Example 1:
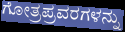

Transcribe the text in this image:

ಗೋತ್ರಪ್ರವರಗಳನ್ನು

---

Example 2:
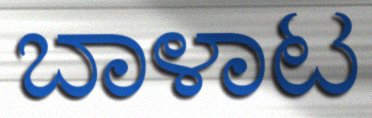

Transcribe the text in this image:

ಬಾಳಾಟ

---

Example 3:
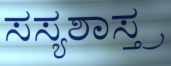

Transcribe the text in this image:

ಸಸ್ಯಶಾಸ್ತ್ರ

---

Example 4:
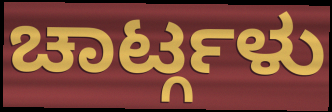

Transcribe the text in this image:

ಚಾರ್ಟ್ಗಳು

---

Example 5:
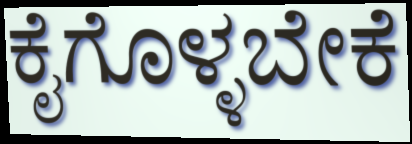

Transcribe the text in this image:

ಕೈಗೊಳ್ಳಬೇಕೆ